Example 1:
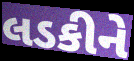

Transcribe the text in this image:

લડકીને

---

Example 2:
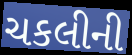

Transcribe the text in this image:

ચકલીની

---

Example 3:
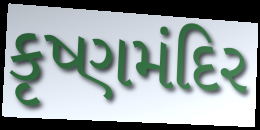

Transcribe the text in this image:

કૃષ્ણમંદિર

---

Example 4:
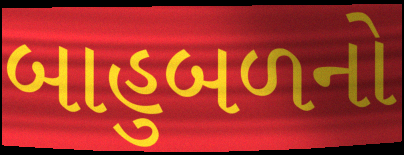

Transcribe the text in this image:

બાહુબળનો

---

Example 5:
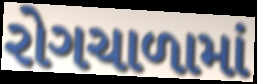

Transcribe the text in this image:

રોગચાળામાં